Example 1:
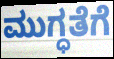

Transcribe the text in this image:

ಮುಗ್ಧತೆಗೆ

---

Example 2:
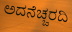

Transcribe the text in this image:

ಅದನೆಚ್ಚರದಿ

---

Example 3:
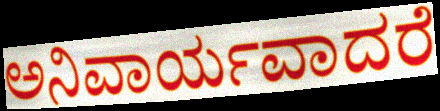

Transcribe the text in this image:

ಅನಿವಾರ್ಯವಾದರೆ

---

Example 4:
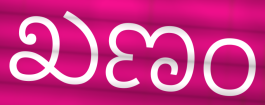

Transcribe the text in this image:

ಖಣಂ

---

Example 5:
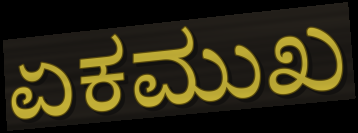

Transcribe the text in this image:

ಏಕಮುಖ